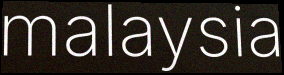
malaysia